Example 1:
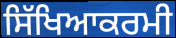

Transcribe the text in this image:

ਸਿੱਖਿਆਕਰਮੀ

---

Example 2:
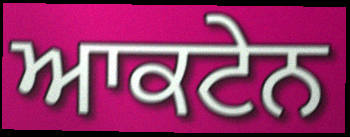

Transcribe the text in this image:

ਆਕਟੇਨ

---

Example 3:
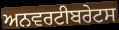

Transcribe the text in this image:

ਅਨਵਰਟੀਬਰੇਟਸ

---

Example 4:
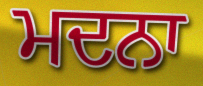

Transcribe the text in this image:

ਮਦਨਾ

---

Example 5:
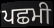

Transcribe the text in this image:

ਪਛਮੀ